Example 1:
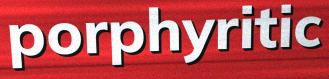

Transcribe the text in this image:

porphyritic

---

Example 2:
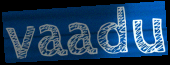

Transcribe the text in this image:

vaadu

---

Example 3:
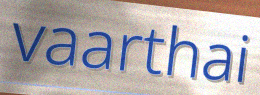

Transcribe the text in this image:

vaarthai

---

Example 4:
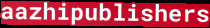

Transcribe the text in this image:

aazhipublishers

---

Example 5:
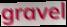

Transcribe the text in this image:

gravel